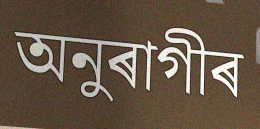
অনুৰাগীৰ